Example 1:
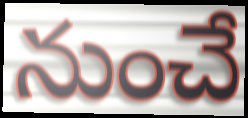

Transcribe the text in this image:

నుంచే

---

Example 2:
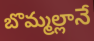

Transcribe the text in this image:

బొమ్మల్లానే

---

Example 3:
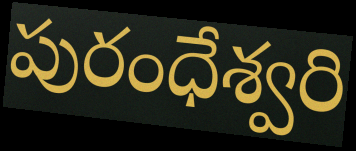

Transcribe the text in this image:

పురంధేశ్వరి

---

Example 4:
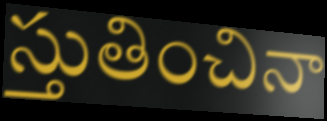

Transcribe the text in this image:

స్తుతించినా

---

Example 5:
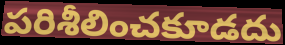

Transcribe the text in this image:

పరిశీలించకూడదు